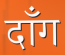
दाँग